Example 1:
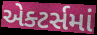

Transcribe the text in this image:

એક્ટર્સમાં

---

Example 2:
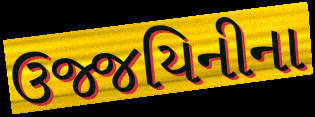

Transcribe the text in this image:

ઉજ્જયિનીના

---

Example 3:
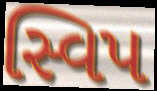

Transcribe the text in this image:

સ્વિપ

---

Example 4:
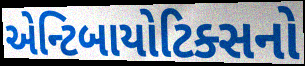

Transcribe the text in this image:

એન્ટિબાયોટિક્સનો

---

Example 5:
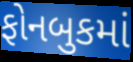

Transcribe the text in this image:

ફોનબુકમાં